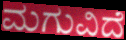
ಮಗುವಿದೆ